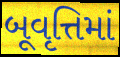
બૂવૃત્તિમાં